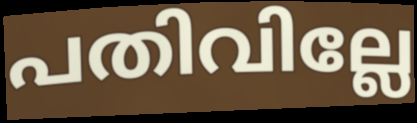
പതിവില്ലേ